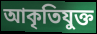
আকৃতিযুক্ত